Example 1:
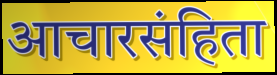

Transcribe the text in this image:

आचारसंहिता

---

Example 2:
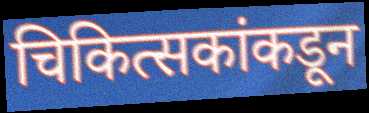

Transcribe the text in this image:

चिकित्सकांकडून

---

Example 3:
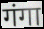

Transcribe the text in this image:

गंगा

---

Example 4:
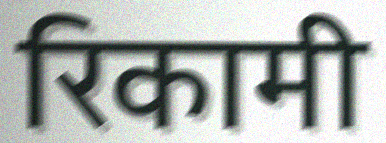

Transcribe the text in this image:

रिकामी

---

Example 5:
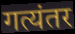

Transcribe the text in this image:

गत्यंतर